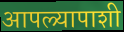
आपल्यापाशी